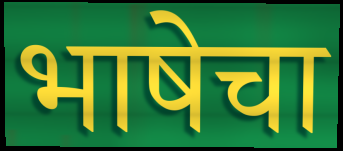
भाषेचा